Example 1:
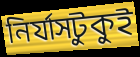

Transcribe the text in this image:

নির্যাসটুকুই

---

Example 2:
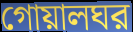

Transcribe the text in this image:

গোয়ালঘর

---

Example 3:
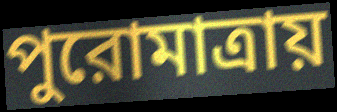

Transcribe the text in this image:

পুরোমাত্রায়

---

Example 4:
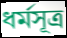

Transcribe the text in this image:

ধর্মসূত্র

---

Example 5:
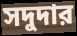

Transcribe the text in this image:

সদুদার